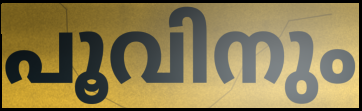
പൂവിനും